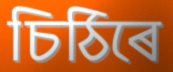
চিঠিৰে